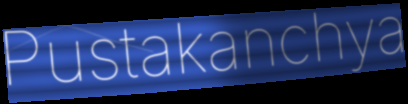
Pustakanchya